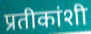
प्रतीकांशी